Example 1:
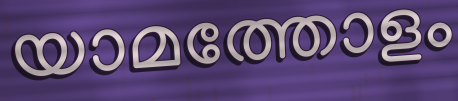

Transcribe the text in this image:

യാമത്തോളം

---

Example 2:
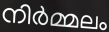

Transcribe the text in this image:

നിർമ്മലം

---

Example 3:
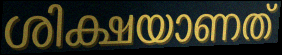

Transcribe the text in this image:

ശിക്ഷയാണത്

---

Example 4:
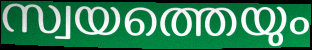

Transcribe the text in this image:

സ്വയത്തെയും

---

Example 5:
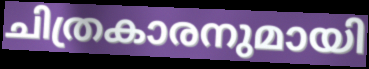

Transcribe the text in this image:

ചിത്രകാരനുമായി